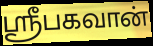
ஸ்ரீபகவான்